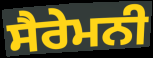
ਸੈਰੇਮਨੀ